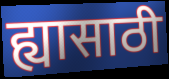
ह्यासाठी